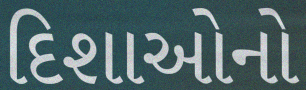
દિશાઓનો